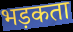
भड़कता